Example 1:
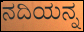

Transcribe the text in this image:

ನದಿಯನ್ನ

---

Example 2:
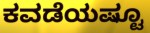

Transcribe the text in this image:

ಕವಡೆಯಷ್ಟೂ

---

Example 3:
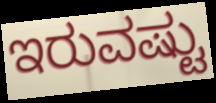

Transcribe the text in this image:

ಇರುವಷ್ಟು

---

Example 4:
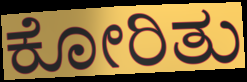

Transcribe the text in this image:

ಕೋರಿತು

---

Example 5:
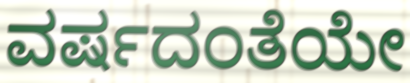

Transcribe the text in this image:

ವರ್ಷದಂತೆಯೇ